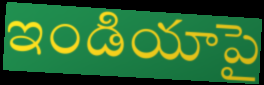
ఇండియాపై